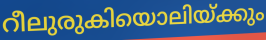
റീലുരുകിയൊലിയ്ക്കും